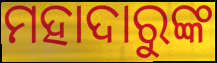
ମହାଦାରୁଙ୍କ